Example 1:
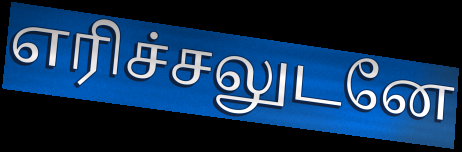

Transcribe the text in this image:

எரிச்சலுடனே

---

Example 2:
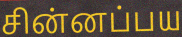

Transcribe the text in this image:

சின்னப்பய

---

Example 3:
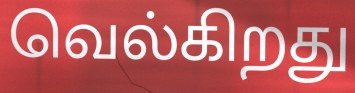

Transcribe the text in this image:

வெல்கிறது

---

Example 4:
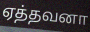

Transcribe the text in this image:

ஏத்தவனா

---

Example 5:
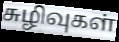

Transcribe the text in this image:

சுழிவுகள்